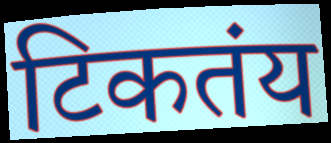
टिकतंय